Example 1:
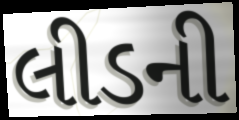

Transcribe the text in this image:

લીડની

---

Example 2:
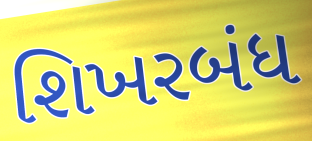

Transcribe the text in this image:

શિખરબંધ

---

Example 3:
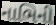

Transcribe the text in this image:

નાભિની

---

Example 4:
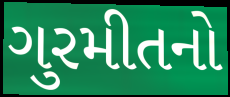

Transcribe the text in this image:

ગુરમીતનો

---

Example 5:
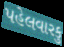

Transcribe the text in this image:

પહેલવારકુ